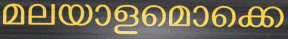
മലയാളമൊക്കെ